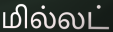
மில்லட்